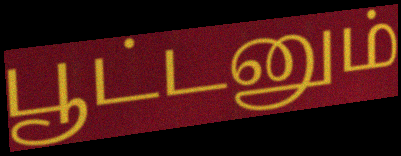
பூட்டனும்